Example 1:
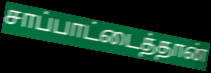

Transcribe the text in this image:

சாப்பாட்டைத்தான்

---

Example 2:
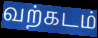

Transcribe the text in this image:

வற்கடம்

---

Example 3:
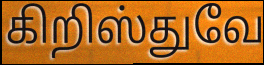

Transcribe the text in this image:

கிறிஸ்துவே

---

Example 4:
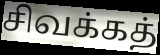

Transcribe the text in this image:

சிவக்கத்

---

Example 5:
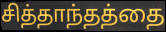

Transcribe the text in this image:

சித்தாந்தத்தை